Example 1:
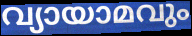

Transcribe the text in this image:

വ്യായാമവും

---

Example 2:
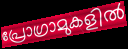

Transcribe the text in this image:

പ്രോഗ്രാമുകളിൽ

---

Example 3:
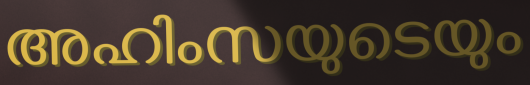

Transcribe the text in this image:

അഹിംസയുടെയും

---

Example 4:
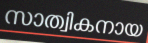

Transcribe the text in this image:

സാത്വികനായ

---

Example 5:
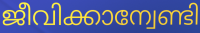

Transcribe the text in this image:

ജീവിക്കാന്വേണ്ടി